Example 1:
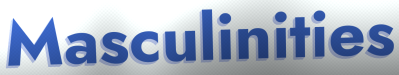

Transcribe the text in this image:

Masculinities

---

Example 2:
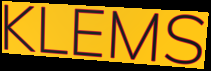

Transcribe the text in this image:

KLEMS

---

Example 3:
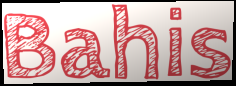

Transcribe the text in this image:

Bahis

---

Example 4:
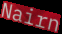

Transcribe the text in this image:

Nairn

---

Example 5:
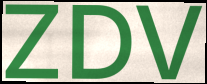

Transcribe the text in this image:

ZDV